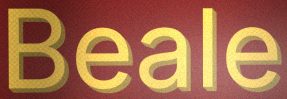
Beale